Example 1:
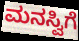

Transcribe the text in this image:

ಮನಸ್ವಿಗೆ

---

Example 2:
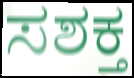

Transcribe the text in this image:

ಸಶಕ್ತ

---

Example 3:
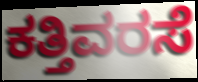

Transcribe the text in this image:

ಕತ್ತಿವರಸೆ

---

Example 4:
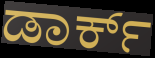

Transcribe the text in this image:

ಡಾರ್ಕ್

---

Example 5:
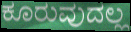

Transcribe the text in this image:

ಕೂರುವುದಲ್ಲ